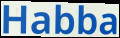
Habba